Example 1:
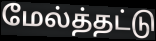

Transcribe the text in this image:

மேல்த்தட்டு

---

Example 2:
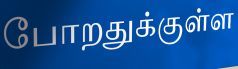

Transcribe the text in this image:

போறதுக்குள்ள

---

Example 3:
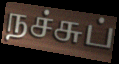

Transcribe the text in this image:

நச்சுப்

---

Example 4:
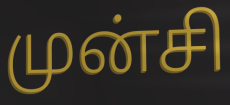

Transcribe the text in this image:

முன்சி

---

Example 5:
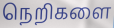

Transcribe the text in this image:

நெறிகளை